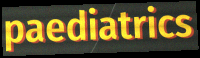
paediatrics